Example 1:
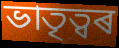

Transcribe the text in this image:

ভাতৃত্বৰ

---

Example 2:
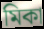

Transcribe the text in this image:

মিকা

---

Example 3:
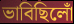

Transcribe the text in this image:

ভাবিছিলোঁ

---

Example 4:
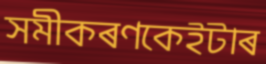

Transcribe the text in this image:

সমীকৰণকেইটাৰ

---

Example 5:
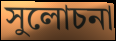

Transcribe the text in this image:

সুলোচনা